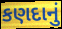
કણદાનું